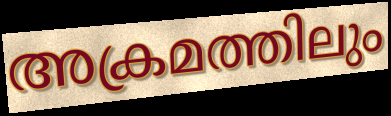
അക്രമത്തിലും